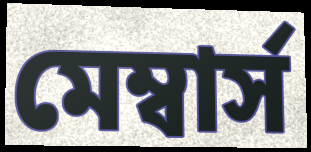
মেম্বার্স